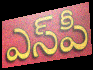
ఎస్‌పీ